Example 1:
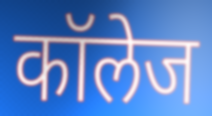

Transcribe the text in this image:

कॉलेज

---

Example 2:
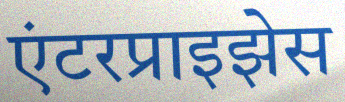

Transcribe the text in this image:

एंटरप्राइझेस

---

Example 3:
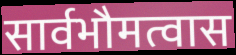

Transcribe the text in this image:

सार्वभौमत्वास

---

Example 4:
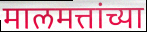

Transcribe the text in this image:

मालमत्तांच्या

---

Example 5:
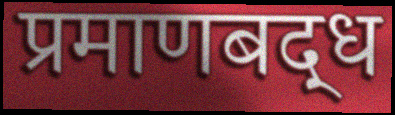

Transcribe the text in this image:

प्रमाणबद्ध